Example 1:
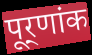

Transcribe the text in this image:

पूर्णांक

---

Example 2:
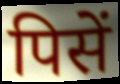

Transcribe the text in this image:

पिसें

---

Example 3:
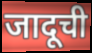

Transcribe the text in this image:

जादूची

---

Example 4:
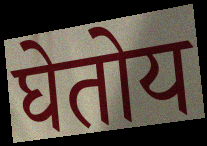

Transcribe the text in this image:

घेतोय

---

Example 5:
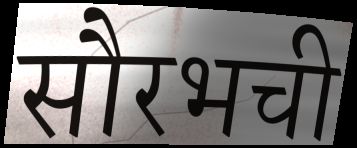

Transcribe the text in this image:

सौरभची